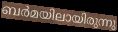
ബർമയിലായിരുന്നു